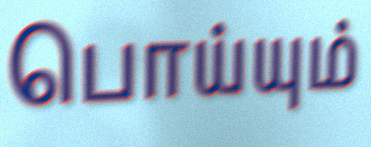
பொய்யும்